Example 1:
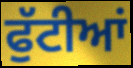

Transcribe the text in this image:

ਫੁੱਟੀਆਂ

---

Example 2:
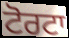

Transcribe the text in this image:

ਟੋਰਟਾ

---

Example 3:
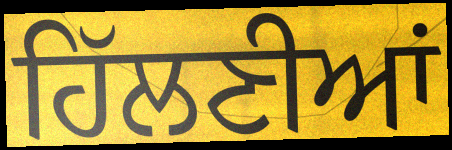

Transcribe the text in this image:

ਹਿੱਲਣੀਆਂ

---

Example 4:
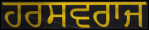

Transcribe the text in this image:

ਹਰਸਵਰਾਜ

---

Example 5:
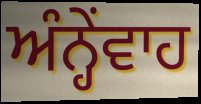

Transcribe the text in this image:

ਅੰਨ੍ਹੇਂਵਾਹ